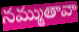
నమ్ముతావా